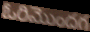
ఓరిమొందగ